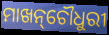
ମାଖନ୍‌ଚୌଧୁରୀ